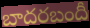
బాదరబందీ